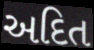
અદિત